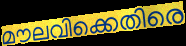
മൗലവിക്കെതിരെ